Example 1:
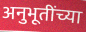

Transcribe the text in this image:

अनुभूतींच्या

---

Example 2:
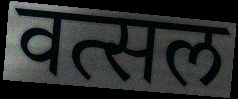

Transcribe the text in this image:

वत्सल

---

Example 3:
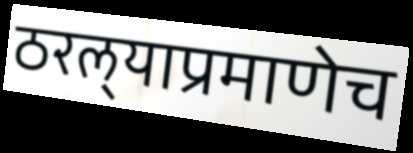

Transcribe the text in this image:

ठरल्याप्रमाणेच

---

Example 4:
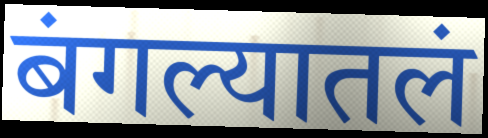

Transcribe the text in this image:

बंगल्यातलं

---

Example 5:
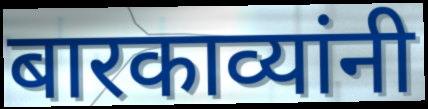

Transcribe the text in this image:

बारकाव्यांनी